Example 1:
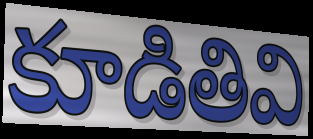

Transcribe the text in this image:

కూడితివి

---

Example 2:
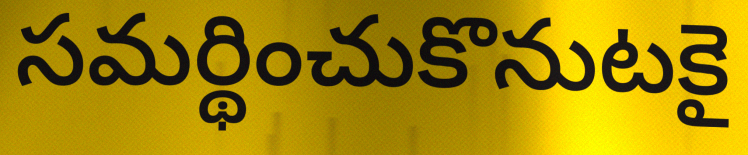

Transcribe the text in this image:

సమర్థించుకొనుటకై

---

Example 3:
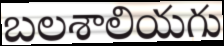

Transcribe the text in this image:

బలశాలియగు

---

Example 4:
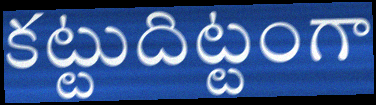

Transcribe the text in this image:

కట్టుదిట్టంగా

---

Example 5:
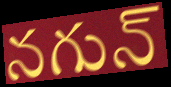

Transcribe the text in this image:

నగున్